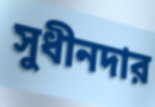
সুধীনদার